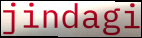
jindagi